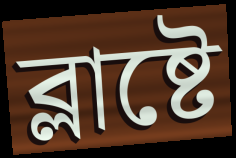
ব্লাষ্টে